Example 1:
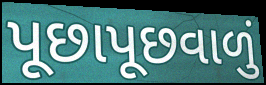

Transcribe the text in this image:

પૂછાપૂછવાળું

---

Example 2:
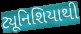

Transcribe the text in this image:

ટ્યૂનિશિયાથી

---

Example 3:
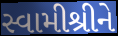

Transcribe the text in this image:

સ્વામીશ્રીને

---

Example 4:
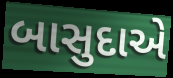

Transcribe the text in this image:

બાસુદાએ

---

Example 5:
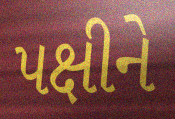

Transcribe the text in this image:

પક્ષીને